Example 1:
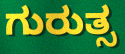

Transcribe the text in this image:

ಗುರುತ್ಸ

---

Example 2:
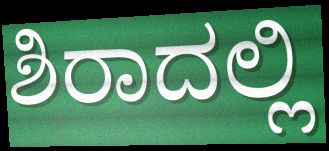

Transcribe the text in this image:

ಶಿರಾದಲ್ಲಿ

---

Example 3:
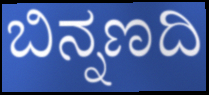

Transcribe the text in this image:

ಬಿನ್ನಣದಿ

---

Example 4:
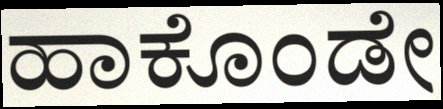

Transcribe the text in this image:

ಹಾಕೊಂಡೇ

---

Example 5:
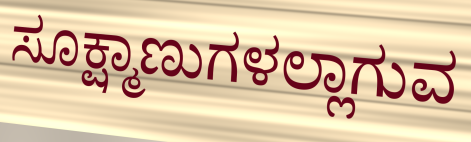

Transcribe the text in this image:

ಸೂಕ್ಷ್ಮಾಣುಗಳಲ್ಲಾಗುವ